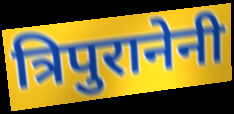
त्रिपुरानेनी